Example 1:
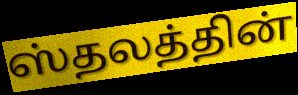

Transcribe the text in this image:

ஸ்தலத்தின்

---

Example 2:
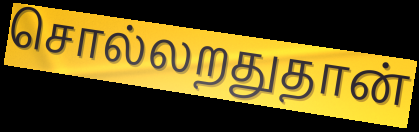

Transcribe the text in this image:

சொல்லறதுதான்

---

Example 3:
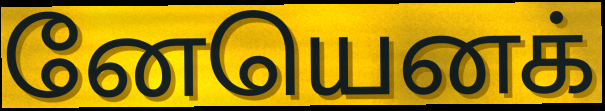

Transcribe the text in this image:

னேயெனக்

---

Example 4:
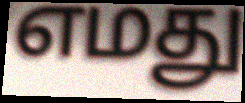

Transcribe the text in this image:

எமது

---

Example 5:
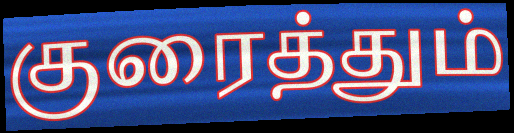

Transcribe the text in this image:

குரைத்தும்